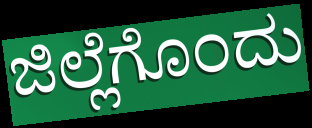
ಜಿಲ್ಲೆಗೊಂದು